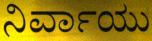
ನಿರ್ವಾಯು